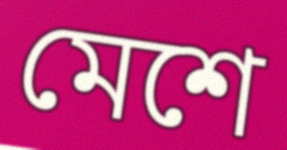
মেশে